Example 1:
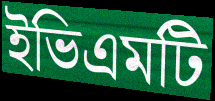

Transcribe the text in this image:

ইভিএমটি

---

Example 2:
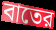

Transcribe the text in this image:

বাতের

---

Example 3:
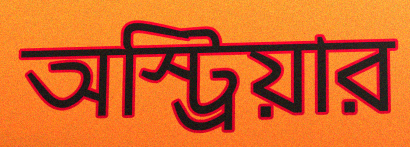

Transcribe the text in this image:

অস্ট্রিয়ার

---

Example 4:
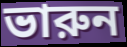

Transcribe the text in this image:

ভারুন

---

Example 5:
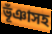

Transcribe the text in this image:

ভূঁঞাসহ